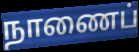
நாணைப்